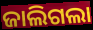
ଜାଲିଗଲା